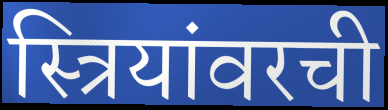
स्त्रियांवरची